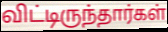
விட்டிருந்தார்கள்